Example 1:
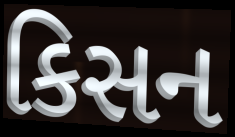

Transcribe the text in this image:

કિસન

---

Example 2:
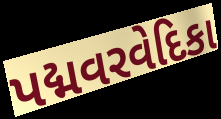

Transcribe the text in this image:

પદ્મવરવેદિકા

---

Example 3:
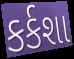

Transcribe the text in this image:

કર્કશા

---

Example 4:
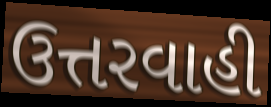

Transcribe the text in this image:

ઉત્તરવાહી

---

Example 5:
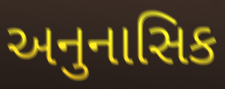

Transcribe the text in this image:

અનુનાસિક